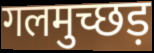
गलमुच्छड़